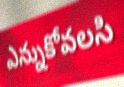
ఎన్నుకోవలసి